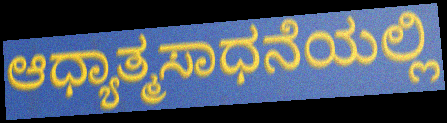
ಆಧ್ಯಾತ್ಮಸಾಧನೆಯಲ್ಲಿ